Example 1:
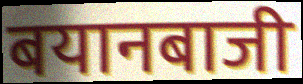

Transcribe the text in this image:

बयानबाजी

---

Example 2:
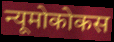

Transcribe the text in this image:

न्यूमोकोकस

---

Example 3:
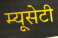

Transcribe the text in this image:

म्यूसेटी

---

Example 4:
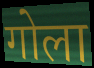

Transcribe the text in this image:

गोला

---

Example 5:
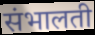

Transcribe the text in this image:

संभालती